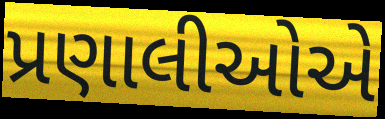
પ્રણાલીઓએ